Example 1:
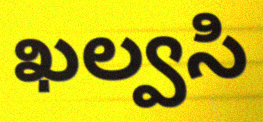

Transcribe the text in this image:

ఖల్వసి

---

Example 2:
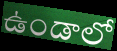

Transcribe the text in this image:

ఉండాలో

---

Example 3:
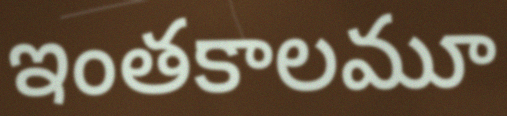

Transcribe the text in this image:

ఇంతకాలమూ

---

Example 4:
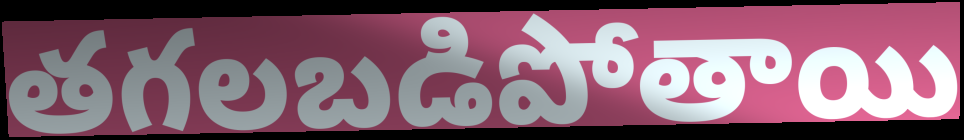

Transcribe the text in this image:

తగలబడిపోతాయి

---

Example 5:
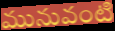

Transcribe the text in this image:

మునువంటి